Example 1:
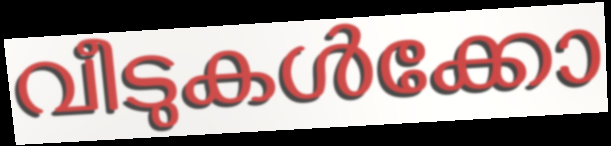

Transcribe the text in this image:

വീടുകൾക്കോ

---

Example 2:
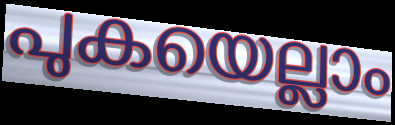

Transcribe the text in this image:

പുകയെല്ലാം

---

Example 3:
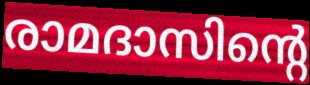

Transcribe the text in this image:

രാമദാസിന്റെ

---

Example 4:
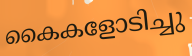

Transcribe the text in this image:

കൈകളോടിച്ചു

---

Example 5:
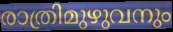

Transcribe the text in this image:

രാത്രിമുഴുവനും